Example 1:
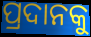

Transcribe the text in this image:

ପ୍ରଦାନକୁ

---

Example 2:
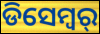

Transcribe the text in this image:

ଡିସେମ୍ବର୍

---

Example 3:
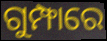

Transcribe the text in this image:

ଗୁମ୍ଫାରେ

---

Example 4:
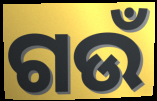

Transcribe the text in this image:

ଗଉଁ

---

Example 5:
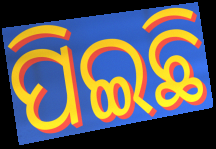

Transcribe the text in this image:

ପିଇଛି